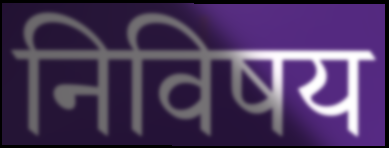
निविषय